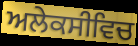
ਅਲੇਕਸੀਵਿਚ